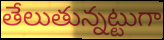
తేలుతున్నట్టుగా